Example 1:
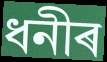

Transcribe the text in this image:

ধনীৰ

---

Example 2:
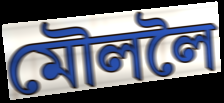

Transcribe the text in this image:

মৌললৈ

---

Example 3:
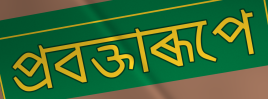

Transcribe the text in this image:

প্ৰবক্তাৰূপে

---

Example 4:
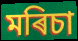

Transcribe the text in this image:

মৰিচা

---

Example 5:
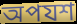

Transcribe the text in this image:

অপযশ